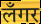
लँगर